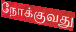
நோக்குவது